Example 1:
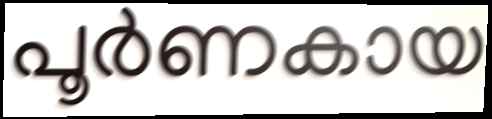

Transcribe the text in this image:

പൂർണകായ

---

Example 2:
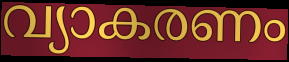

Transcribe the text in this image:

വ്യാകരണം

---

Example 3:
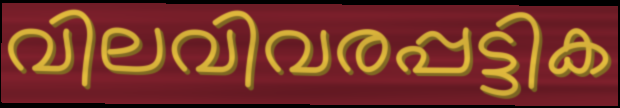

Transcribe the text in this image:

വിലവിവരപ്പട്ടിക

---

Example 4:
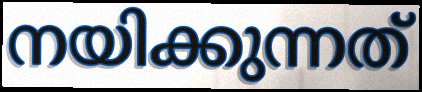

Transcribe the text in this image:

നയിക്കുന്നത്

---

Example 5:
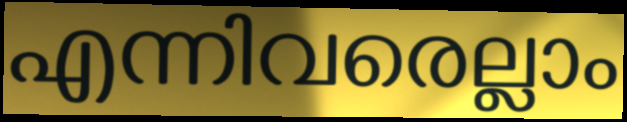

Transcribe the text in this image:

എന്നിവരെല്ലാം